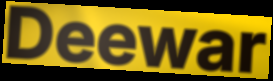
Deewar